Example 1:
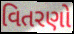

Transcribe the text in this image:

વિતરણો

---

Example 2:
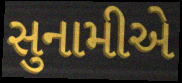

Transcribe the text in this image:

સુનામીએ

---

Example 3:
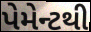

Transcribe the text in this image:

પેમેન્ટથી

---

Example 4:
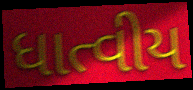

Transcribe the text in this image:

ધાત્વીય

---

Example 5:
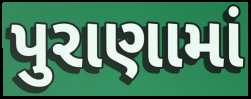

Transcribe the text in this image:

પુરાણામાં